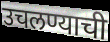
उचलण्याची